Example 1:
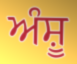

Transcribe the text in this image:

ਅੰਸ਼ੂ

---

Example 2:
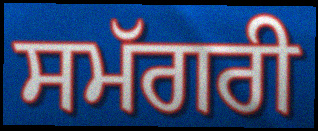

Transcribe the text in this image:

ਸਮੱਗਰੀ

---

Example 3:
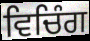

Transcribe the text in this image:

ਵਿਚਿੰਗ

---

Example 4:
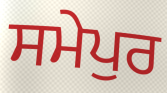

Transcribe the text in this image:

ਸਮੇਪੁਰ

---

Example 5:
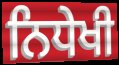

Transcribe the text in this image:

ਨਿਧੇਖੀ